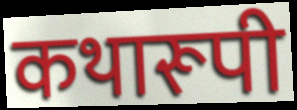
कथारूपी